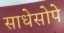
साधेसोपे